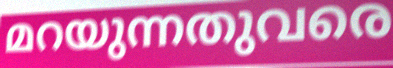
മറയുന്നതുവരെ